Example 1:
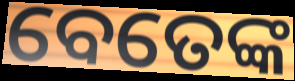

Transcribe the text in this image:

ବେତେଙ୍କ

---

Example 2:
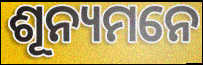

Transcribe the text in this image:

ଶୂନ୍ୟମନେ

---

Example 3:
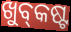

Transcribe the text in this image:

ଖୁବ୍‌କଷ୍ଟ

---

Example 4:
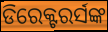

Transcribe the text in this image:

ଡିରେକ୍ଟରର୍ସଙ୍କ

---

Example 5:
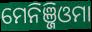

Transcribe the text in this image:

ମେନିଞ୍ଜିଓମା